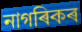
নাগৰিকৰ